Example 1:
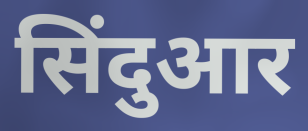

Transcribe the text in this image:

सिंदुआर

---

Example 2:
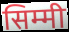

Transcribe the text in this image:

सिम्मी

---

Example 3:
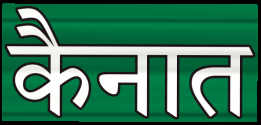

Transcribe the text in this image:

कैनात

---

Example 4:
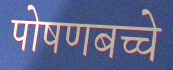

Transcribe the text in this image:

पोषणबच्चे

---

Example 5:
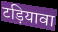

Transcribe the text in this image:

टड़ियावा